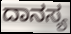
ದಾನಸ್ಯ